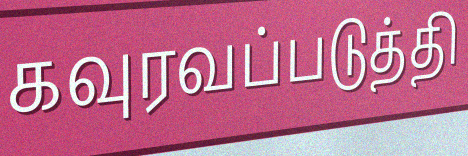
கவுரவப்படுத்தி